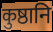
कुष्ठानि